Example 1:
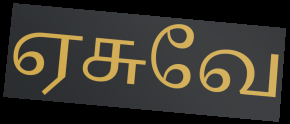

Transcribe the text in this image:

ஏசுவே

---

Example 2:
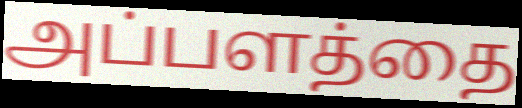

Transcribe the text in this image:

அப்பளத்தை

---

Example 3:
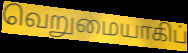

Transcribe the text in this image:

வெறுமையாகிப்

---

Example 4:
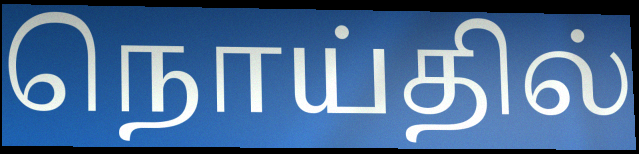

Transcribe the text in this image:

நொய்தில்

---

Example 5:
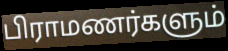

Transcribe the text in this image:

பிராமணர்களும்